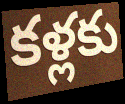
కళ్లకు